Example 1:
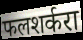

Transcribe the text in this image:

फलशर्करा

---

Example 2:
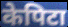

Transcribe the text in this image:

केपिटा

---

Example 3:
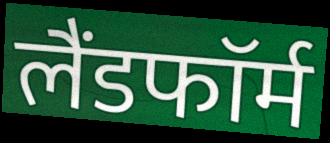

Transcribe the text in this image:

लैंडफॉर्म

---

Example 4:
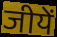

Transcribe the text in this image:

जीयें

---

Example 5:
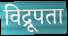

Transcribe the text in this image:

विद्रूपता